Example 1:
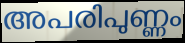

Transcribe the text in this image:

അപരിപുണ്ണം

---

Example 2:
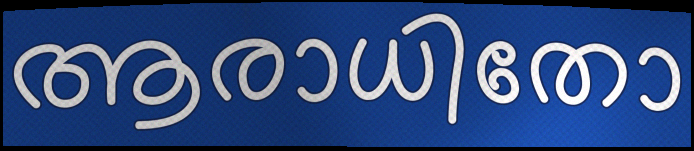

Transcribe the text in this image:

ആരാധിതോ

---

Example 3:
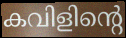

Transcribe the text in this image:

കവിളിന്റെ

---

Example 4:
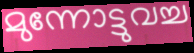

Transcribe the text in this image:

മുന്നോട്ടുവച്ച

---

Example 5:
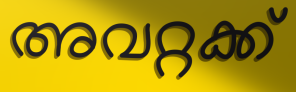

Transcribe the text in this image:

അവറ്റക്ക്